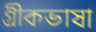
গ্রীকভাষা